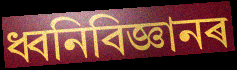
ধ্বনিবিজ্ঞানৰ